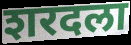
शरदला